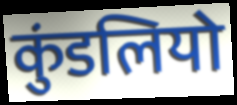
कुंडलियो